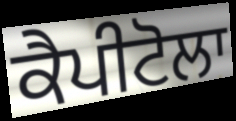
ਕੈਪੀਟੋਲਾ